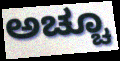
ಅಚ್ಚೂ